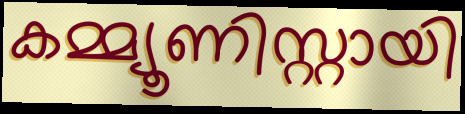
കമ്മ്യൂണിസ്റ്റായി